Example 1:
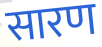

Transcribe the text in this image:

सारण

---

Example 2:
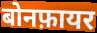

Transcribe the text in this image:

बोनफ़ायर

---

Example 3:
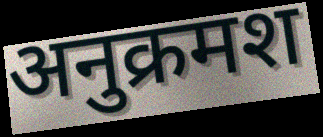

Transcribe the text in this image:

अनुक्रमश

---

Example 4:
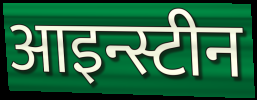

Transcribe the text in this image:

आइन्स्टीन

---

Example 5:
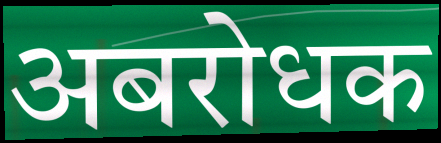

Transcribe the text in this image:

अबरोधक